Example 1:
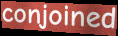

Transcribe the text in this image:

conjoined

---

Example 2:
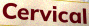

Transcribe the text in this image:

Cervical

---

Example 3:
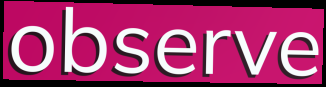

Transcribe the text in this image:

observe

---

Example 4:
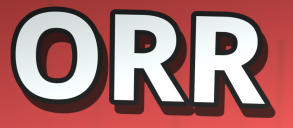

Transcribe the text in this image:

ORR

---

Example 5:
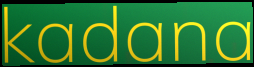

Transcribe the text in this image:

kadana